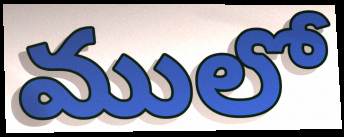
ములో